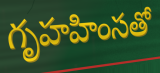
గృహహింసతో